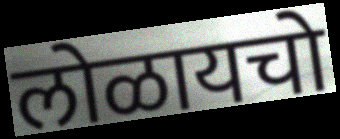
लोळायचो